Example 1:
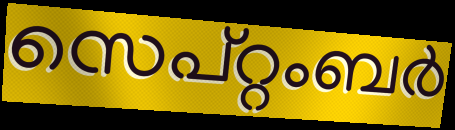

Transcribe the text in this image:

സെപ്റ്റംബർ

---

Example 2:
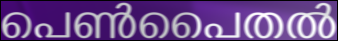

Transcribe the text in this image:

പെൺപൈതൽ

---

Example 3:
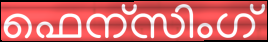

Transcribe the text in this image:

ഫെന്സിംഗ്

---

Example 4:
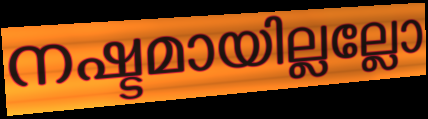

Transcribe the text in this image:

നഷ്ടമായില്ലല്ലോ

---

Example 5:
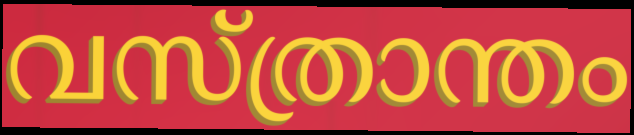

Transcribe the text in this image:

വസ്ത്രാന്തം